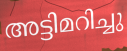
അട്ടിമറിച്ചു